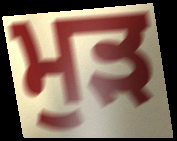
ਮੁੜ